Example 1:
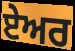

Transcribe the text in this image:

ਏੇਅਰ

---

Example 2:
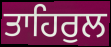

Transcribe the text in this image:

ਤਾਹਿਰੁਲ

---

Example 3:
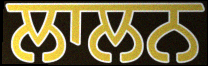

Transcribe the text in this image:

ਲਾਲਨ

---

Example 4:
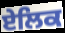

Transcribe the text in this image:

ਏਲਿਕ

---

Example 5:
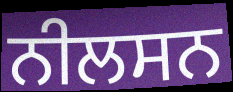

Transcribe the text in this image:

ਨੀਲਸਨ